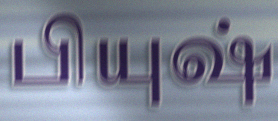
பியுஷ்